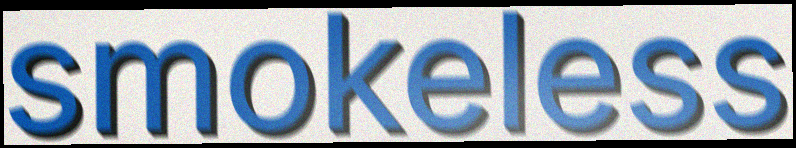
smokeless